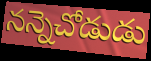
నన్నెచోడుడు